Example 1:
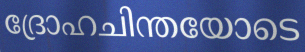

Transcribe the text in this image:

ദ്രോഹചിന്തയോടെ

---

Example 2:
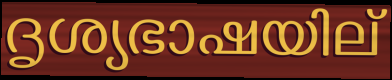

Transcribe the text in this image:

ദൃശ്യഭാഷയില്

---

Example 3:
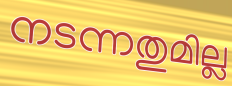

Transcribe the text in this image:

നടന്നതുമില്ല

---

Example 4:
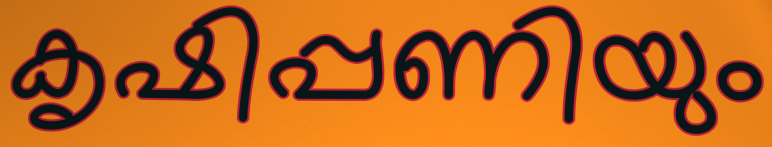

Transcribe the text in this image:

കൃഷിപ്പണിയും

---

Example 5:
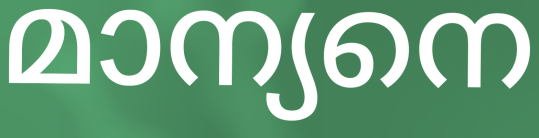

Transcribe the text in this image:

മാന്യനെ